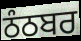
ਠੰਠਬਰ